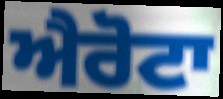
ਐਰੋਟਾ